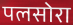
पलसोरा